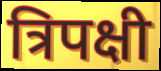
त्रिपक्षी